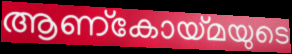
ആണ്കോയ്മയുടെ